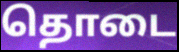
தொடை